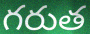
గరుత